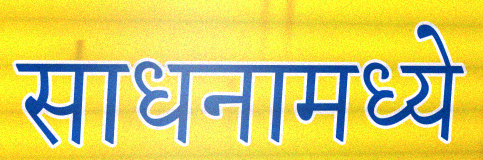
साधनामध्ये